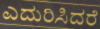
ಎದುರಿಸಿದರೆ